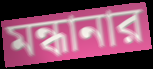
মন্ধানার